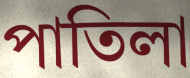
পাতিলা